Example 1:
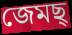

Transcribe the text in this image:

জেমছ্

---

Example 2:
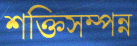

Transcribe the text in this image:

শক্তিসম্পন্ন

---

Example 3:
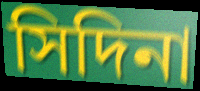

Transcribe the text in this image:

সিদিনা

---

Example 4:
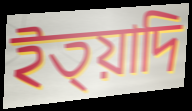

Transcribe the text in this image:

ইত্য়াদি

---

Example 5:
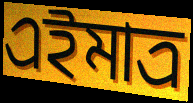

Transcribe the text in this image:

এইমাত্ৰ